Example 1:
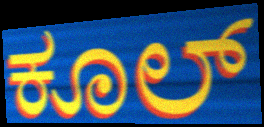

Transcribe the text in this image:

ಕೂಲ್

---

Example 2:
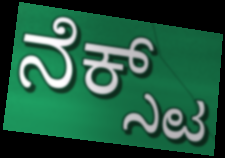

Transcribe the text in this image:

ನೆಕ್ಸ್ಟ್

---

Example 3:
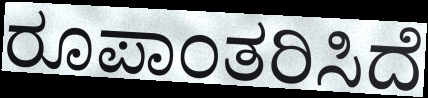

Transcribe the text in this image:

ರೂಪಾಂತರಿಸಿದೆ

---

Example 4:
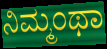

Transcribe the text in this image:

ನಿಮ್ಮಂಥಾ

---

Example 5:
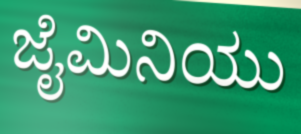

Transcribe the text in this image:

ಜೈಮಿನಿಯು